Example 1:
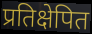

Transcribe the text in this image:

प्रतिक्षेपित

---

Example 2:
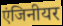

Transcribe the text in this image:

एंजिनीयर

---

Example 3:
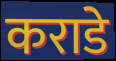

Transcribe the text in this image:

कराडे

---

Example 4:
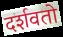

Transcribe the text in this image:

दर्शवतो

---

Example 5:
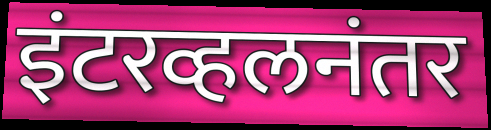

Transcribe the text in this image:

इंटरव्हलनंतर